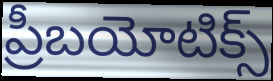
ప్రీబయోటిక్స్